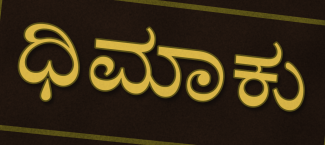
ಧಿಮಾಕು